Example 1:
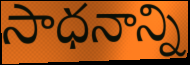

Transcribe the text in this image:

సాధనాన్ని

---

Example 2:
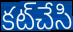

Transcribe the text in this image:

కట్‌చేసి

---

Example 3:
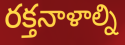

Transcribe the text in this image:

రక్తనాళాల్ని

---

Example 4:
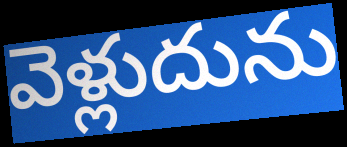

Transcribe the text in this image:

వెళ్లుదును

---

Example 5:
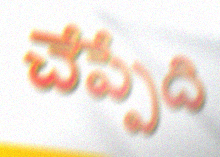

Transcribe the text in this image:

చేప్పేది